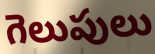
గెలుపులు